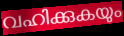
വഹിക്കുകയും